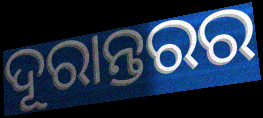
ଦୂରାନ୍ତରର